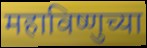
महाविष्णुच्या